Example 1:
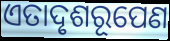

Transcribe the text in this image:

ଏତାଦୃଶରୂପେଣ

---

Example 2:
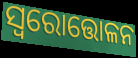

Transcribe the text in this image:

ସ୍ବରୋତ୍ତୋଳନ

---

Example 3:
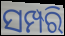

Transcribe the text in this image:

ସମ୍ପରି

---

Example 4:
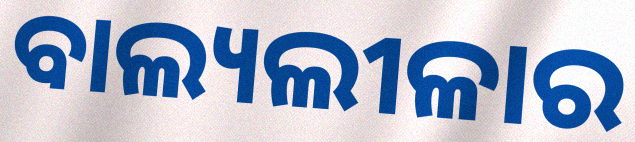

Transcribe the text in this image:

ବାଲ୍ୟଲୀଳାର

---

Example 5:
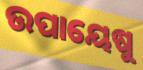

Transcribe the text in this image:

ଉପାୟେଷୁ